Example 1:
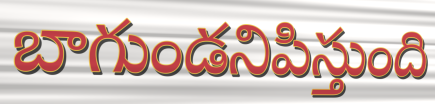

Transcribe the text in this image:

బాగుండనిపిస్తుంది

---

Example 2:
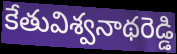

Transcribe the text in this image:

కేతువిశ్వనాథరెడ్డి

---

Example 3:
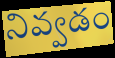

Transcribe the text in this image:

నివ్వడం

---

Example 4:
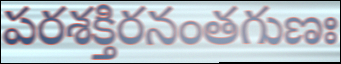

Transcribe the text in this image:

పరశక్తిరనంతగుణః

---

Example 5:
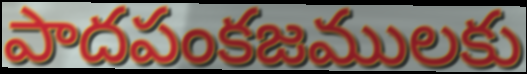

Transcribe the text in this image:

పాదపంకజములకు